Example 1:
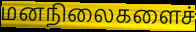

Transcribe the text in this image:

மனநிலைகளைச்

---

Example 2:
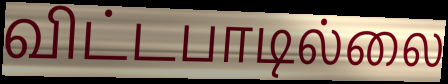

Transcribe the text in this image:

விட்டபாடில்லை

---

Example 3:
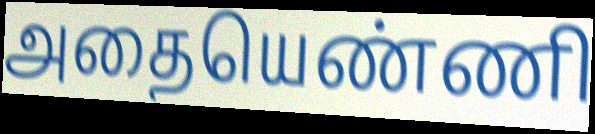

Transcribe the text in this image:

அதையெண்ணி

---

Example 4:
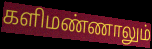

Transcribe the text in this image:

களிமண்ணாலும்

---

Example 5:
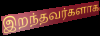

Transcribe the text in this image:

இறந்தவர்களாக